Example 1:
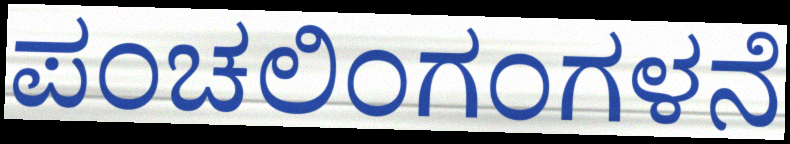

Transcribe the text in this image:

ಪಂಚಲಿಂಗಂಗಳನೆ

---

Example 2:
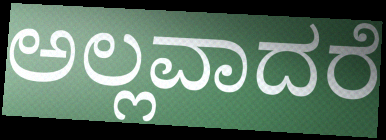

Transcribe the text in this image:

ಅಲ್ಲವಾದರೆ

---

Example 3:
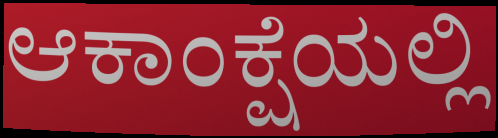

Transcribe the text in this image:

ಆಕಾಂಕ್ಷೆಯಲ್ಲಿ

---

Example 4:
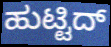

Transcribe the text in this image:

ಹುಟ್ಟಿದ್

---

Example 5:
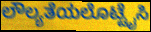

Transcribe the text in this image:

ಲೌಲ್ಯತೆಯಲೊಟ್ಟೈಸಿ